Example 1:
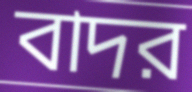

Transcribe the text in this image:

বাদর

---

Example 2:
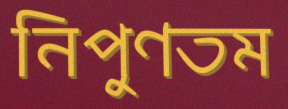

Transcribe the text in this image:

নিপুণতম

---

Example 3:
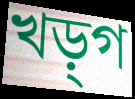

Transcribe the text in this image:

খড়্‌গ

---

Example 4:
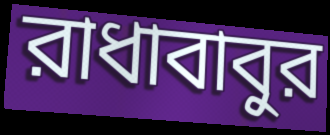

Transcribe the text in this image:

রাধাবাবুর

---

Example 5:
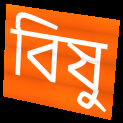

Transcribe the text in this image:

বিষু